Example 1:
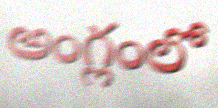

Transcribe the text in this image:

అంగ్లంలో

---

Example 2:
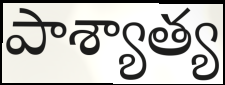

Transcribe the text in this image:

పాశ్యాత్య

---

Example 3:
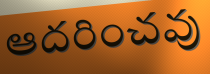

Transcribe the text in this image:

ఆదరించవు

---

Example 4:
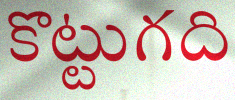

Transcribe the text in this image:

కొట్టుగది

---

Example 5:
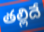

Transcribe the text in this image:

తల్లిదే